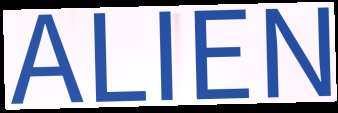
ALIEN